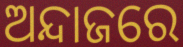
ଅନ୍ଦାଜରେ